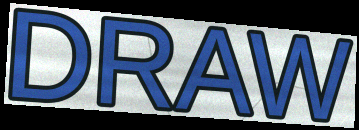
DRAW